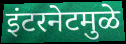
इंटरनेटमुळे